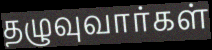
தழுவுவார்கள்